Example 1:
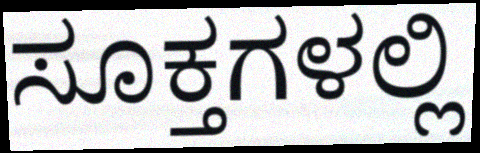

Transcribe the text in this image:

ಸೂಕ್ತಗಳಲ್ಲಿ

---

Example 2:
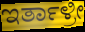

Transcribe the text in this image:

ಇರ್ತಾಳ್ರೀ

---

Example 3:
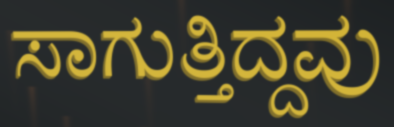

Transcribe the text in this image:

ಸಾಗುತ್ತಿದ್ದವು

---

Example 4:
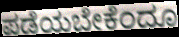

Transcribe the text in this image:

ಪಡೆಯಬೇಕೆಂದೂ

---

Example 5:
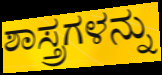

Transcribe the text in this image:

ಶಾಸ್ತ್ರಗಳನ್ನು